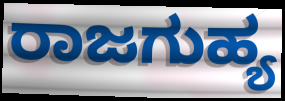
ರಾಜಗುಹ್ಯ